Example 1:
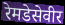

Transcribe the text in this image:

रेमडेसेवीर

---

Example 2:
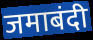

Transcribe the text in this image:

जमाबंदी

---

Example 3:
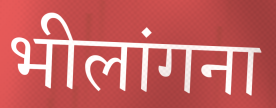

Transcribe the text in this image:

भीलांगना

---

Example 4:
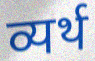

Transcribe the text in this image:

व्यर्थ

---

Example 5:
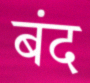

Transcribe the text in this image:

बंद